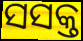
ସସକ୍ତ